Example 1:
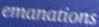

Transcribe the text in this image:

emanations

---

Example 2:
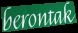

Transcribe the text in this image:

berontak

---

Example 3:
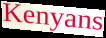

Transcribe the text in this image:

Kenyans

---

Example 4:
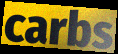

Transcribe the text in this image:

carbs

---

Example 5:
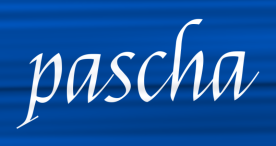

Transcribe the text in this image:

pascha